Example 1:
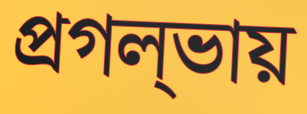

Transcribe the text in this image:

প্রগল্‌ভায়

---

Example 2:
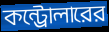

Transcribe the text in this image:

কন্ট্রোলারের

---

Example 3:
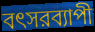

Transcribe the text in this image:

বৎসরব্যাপী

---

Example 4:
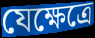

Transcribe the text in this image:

যেক্ষেত্রে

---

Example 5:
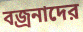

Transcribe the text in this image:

বজ্রনাদের